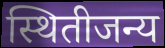
स्थितीजन्य